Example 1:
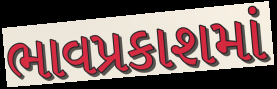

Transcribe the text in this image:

ભાવપ્રકાશમાં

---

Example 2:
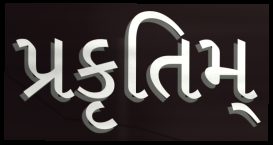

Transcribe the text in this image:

પ્રકૃતિમ્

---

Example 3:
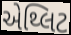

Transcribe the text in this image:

એથ્લિટ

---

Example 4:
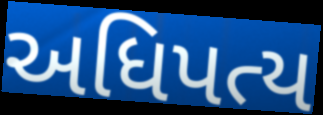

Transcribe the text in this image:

અધિપત્ય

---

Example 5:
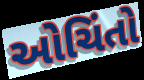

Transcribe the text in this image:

ઓચિંતો